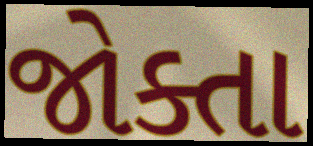
જોક્તા